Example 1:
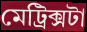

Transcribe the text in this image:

মেট্রিক্সটা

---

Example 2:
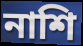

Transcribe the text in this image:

নাশি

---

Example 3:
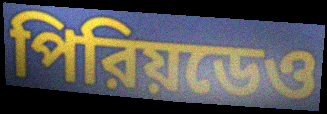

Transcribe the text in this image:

পিরিয়ডেও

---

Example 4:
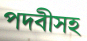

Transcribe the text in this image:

পদবীসহ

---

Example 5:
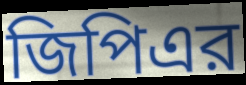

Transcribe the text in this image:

জিপিএর